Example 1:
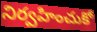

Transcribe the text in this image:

నిర్వహించుకో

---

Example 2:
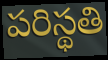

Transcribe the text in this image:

పరిస్థతి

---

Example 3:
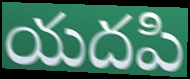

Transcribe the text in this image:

యదపి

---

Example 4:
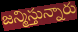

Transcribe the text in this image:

జన్మిస్తున్నారు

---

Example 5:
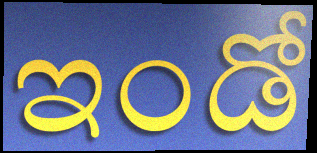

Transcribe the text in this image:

ఇండో